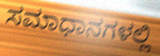
ಸಮಾಧಾನಗಳಲ್ಲಿ